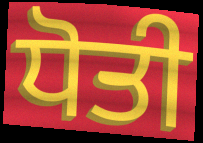
ਧੋਤੀ